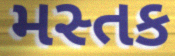
મસ્તક